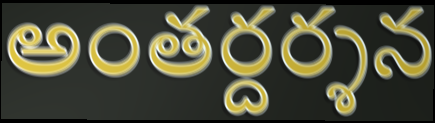
అంతర్దర్శన